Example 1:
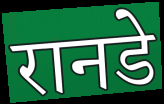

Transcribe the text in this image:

रानडे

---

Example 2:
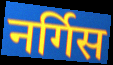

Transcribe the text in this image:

नर्गिस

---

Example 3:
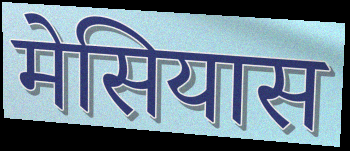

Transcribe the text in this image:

मेसियास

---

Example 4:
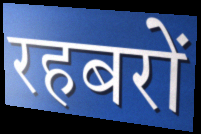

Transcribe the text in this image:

रहबरों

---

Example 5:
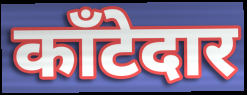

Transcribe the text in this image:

काँटेदार